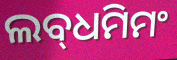
ଲବ୍‌ଧମିମଂ